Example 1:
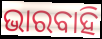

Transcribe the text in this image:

ଭାରବାହି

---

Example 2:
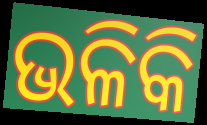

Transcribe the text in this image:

ଭଳିକି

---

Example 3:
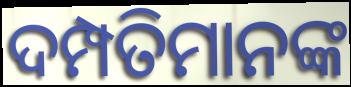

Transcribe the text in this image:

ଦମ୍ପତିମାନଙ୍କ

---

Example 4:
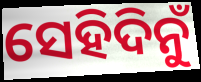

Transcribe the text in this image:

ସେହିଦିନୁଁ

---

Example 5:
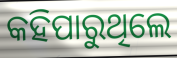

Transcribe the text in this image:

କହିପାରୁଥିଲେ